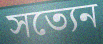
সত্যেন